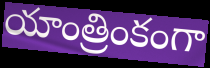
యాంత్రింకంగా